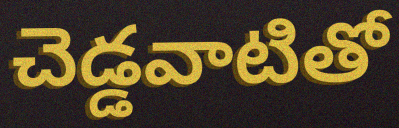
చెడ్డవాటితో